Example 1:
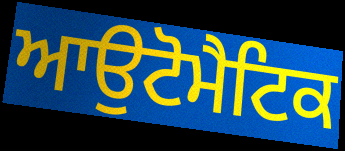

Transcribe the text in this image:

ਆਉਟੋਮੈਟਿਕ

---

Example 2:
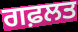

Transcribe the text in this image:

ਗਫ਼ਲਤ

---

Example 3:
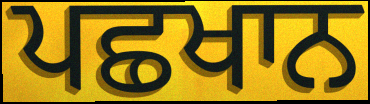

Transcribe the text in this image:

ਪਛਖਾਨ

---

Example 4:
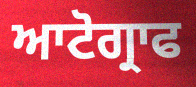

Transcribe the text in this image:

ਆਟੋਗ੍ਰਾਫ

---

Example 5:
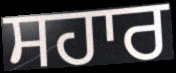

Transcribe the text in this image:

ਸਹਾਰ